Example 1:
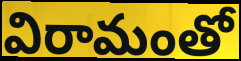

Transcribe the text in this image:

విరామంతో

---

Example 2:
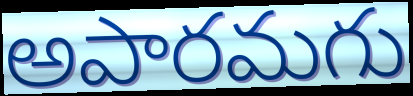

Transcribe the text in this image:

అపారమగు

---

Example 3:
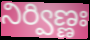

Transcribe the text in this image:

నిర్విణ్ణః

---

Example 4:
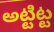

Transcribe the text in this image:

అట్టిట్ట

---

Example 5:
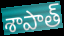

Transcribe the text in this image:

శాపాత్